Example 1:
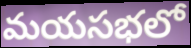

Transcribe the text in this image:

మయసభలో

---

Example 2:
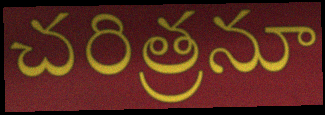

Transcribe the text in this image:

చరిత్రనూ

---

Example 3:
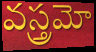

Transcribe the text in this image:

వస్త్రమో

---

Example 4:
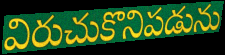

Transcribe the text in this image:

విరుచుకొనిపడును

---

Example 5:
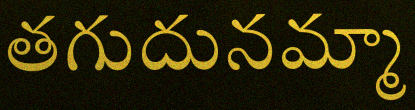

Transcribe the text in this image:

తగుదునమ్మా